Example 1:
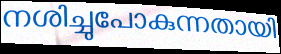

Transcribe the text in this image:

നശിച്ചുപോകുന്നതായി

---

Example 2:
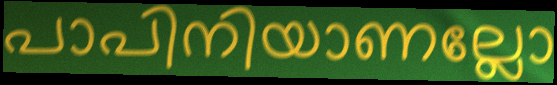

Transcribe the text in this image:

പാപിനിയാണല്ലോ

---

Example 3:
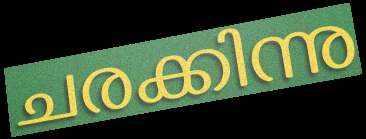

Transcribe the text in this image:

ചരക്കിന്നു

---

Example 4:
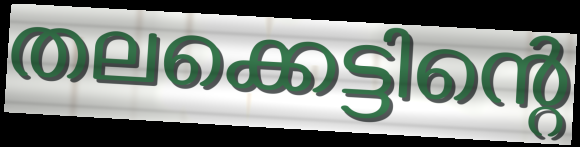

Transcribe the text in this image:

തലക്കെട്ടിന്റെ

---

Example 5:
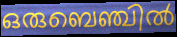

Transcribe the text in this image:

ഒരുബെഞ്ചിൽ